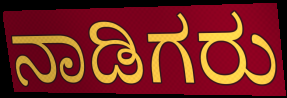
ನಾಡಿಗರು